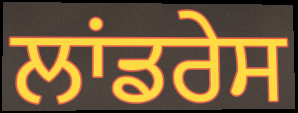
ਲਾਂਡਰੇਸ